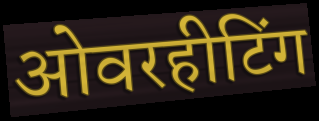
ओवरहीटिंग